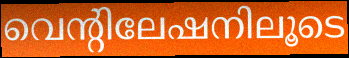
വെന്റിലേഷനിലൂടെ